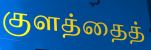
குளத்தைத்